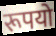
रूपयो